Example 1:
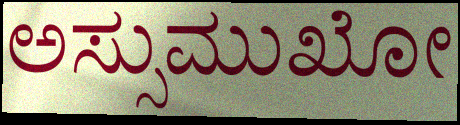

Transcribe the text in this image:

ಅಸ್ಸುಮುಖೋ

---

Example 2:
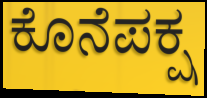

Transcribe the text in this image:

ಕೊನೆಪಕ್ಷ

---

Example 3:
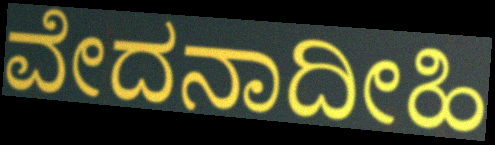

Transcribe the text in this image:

ವೇದನಾದೀಹಿ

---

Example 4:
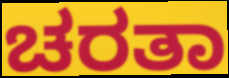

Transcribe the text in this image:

ಚರತಾ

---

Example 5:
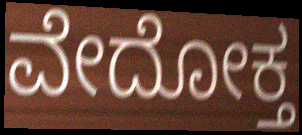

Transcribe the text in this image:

ವೇದೋಕ್ತ